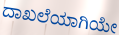
ದಾಖಲೆಯಾಗಿಯೇ